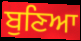
ਬੁਣਿਆ